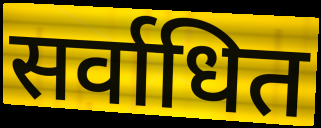
सर्वाधित